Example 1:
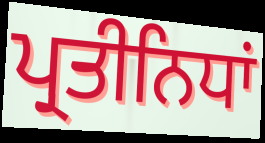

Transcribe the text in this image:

ਪ੍ਰਤੀਨਿਧਾਂ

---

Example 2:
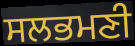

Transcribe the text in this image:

ਸਲਭਮਣੀ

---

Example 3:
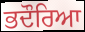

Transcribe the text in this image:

ਭਦੌਰਿਆ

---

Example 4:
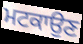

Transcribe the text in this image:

ਮਟਕਾਉਣ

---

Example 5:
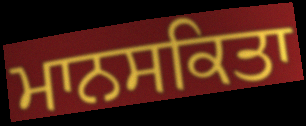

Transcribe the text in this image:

ਮਾਨਸਕਿਤਾ